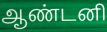
ஆண்டனி